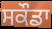
ਸਕੌਡਾ